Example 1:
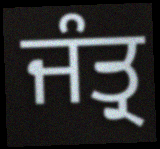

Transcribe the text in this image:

ਜੰਤ੍ਰ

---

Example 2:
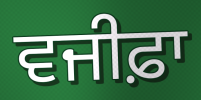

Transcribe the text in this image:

ਵਜੀਫ਼ਾ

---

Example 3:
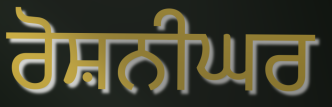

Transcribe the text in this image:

ਰੋਸ਼ਨੀਘਰ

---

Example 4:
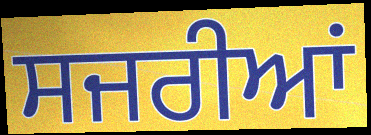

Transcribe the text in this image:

ਸਜਰੀਆਂ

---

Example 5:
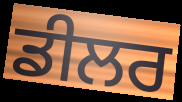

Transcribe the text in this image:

ਡੀਲਰ